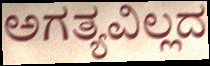
ಅಗತ್ಯವಿಲ್ಲದ